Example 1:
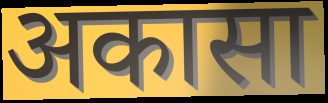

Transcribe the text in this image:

अकासा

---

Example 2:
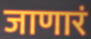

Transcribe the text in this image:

जाणारं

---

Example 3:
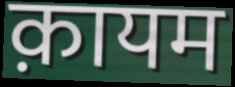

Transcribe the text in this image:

क़ायम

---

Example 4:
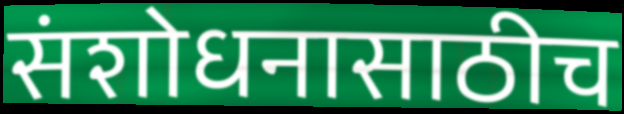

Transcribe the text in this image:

संशोधनासाठीच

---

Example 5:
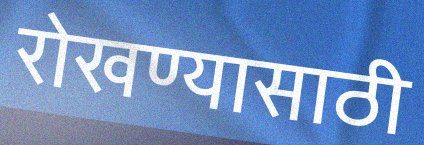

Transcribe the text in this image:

रोखण्यासाठी